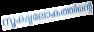
സൂക്ഷ്മലോകത്തിന്റെ